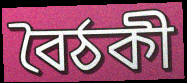
বৈঠকী